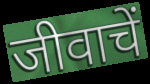
जीवाचें